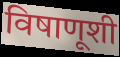
विषाणूशी